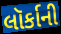
લૉર્કાની